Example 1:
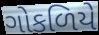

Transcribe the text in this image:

ગોકળિયે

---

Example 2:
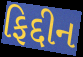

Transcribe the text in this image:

ફિદ્દીન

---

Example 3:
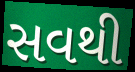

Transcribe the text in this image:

સવથી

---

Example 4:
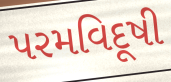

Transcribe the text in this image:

પરમવિદૂષી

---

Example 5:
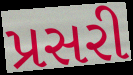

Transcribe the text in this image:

પ્રસરી